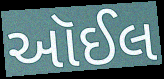
આૅઈલ